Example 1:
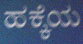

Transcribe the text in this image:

ಹಕ್ಕೆಯ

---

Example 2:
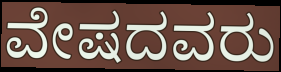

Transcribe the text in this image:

ವೇಷದವರು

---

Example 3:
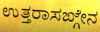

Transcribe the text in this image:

ಉತ್ತರಾಸಙ್ಗೇನ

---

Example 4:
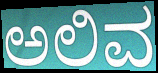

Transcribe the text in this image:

ಅಲಿವ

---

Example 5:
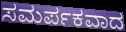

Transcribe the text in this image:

ಸಮರ್ಪಕವಾದ